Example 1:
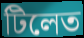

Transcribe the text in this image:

টিলেত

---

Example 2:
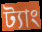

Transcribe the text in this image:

ট্যাং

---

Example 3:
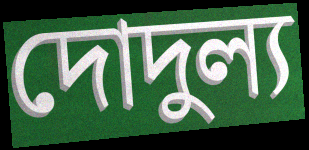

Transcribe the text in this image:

দোদুল্য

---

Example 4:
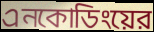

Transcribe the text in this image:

এনকোডিংয়ের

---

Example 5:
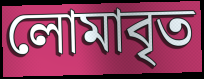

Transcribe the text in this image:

লোমাবৃত